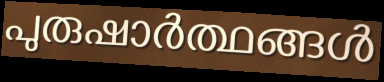
പുരുഷാർത്ഥങ്ങൾ